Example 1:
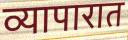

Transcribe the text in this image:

व्यापारात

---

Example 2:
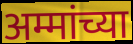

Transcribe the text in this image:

अम्मांच्या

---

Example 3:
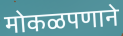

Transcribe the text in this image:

मोकळपणाने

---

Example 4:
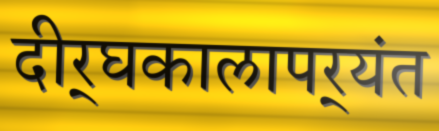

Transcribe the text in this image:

दीर्घकालापर्यंत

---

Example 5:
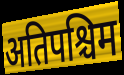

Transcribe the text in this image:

अतिपश्चिम